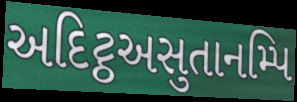
અદિટ્ઠઅસુતાનમ્પિ